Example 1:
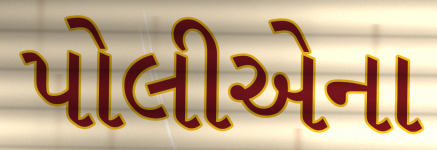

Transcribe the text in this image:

પોલીએના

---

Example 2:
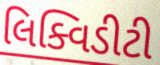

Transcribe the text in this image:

લિક્વિડીટી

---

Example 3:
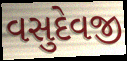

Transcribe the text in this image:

વસુદેવજી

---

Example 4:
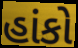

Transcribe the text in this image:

હાંકો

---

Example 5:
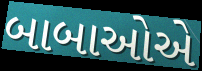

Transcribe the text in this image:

બાબાઓએ